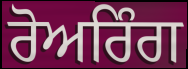
ਰੋਅਰਿੰਗ